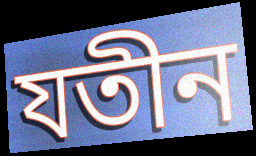
যতীন